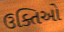
ઉક્તિઓ